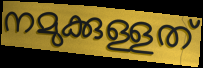
നമുക്കുള്ളത്